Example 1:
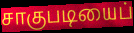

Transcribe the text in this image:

சாகுபடியைப்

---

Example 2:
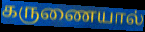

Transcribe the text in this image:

கருணையால்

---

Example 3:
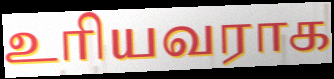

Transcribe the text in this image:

உரியவராக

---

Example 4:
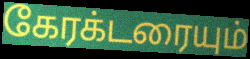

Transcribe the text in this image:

கேரக்டரையும்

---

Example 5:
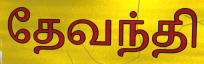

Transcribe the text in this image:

தேவந்தி